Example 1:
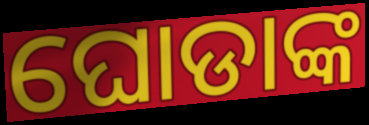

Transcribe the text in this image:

ଘୋଡାଙ୍କ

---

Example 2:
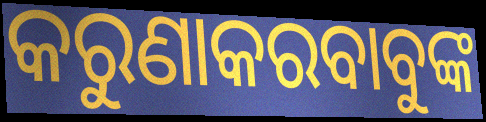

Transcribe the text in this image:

କରୁଣାକରବାବୁଙ୍କ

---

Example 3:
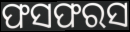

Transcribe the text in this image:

ଫସଫରସ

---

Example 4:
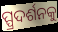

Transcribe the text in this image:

ପ୍ପ୍ରଦର୍ଶନକୁ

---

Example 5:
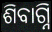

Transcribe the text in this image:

ଶିବାଗ୍ନି